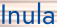
Inula